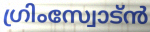
ഗ്രിംസ്വോട്ൻ